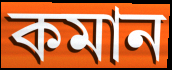
কমান